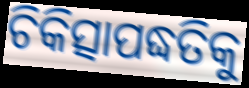
ଚିକିତ୍ସାପଦ୍ଧତିକୁ